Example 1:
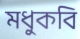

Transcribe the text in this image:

মধুকবি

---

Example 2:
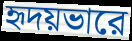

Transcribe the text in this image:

হৃদয়ভারে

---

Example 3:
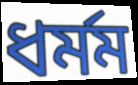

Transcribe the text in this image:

ধর্মম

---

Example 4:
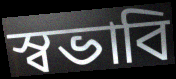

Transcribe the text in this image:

স্বভাবি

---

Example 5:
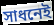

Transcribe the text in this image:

সাধনেই